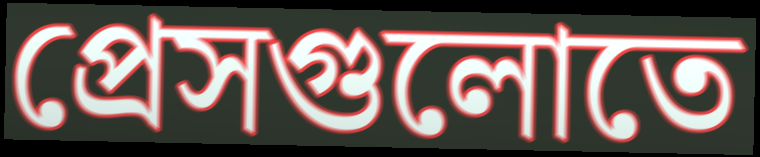
প্রেসগুলোতে